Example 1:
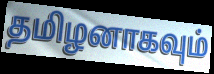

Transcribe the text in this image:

தமிழனாகவும்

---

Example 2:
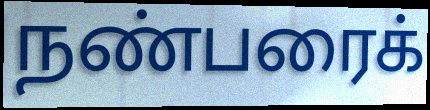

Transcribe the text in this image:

நண்பரைக்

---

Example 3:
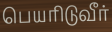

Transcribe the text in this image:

பெயரிடுவீர்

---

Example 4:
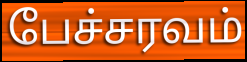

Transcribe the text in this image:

பேச்சரவம்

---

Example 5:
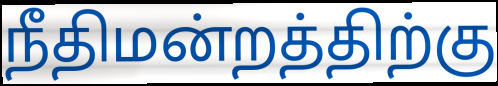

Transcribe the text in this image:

நீதிமன்றத்திற்கு